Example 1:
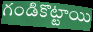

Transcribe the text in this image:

గండికొట్టాయి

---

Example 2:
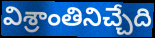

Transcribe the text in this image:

విశ్రాంతినిచ్చేది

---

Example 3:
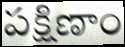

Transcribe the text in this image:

పక్షిణాం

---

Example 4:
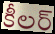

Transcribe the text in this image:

కీలర్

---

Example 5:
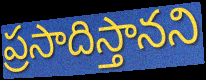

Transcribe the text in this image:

ప్రసాదిస్తానని